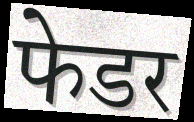
फेडर